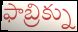
ఫాబ్రిక్ను